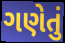
ગણેતું